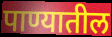
पाण्यातील